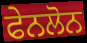
ਫੇਨਲੋਨ